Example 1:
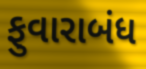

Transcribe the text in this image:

ફુવારાબંધ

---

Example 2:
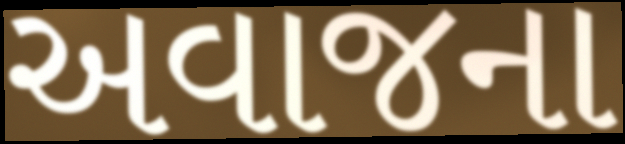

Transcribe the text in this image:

અવાજના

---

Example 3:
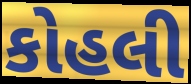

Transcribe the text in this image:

કોહલી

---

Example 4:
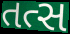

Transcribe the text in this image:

તત્સ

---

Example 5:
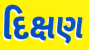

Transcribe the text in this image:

દિક્ષણ